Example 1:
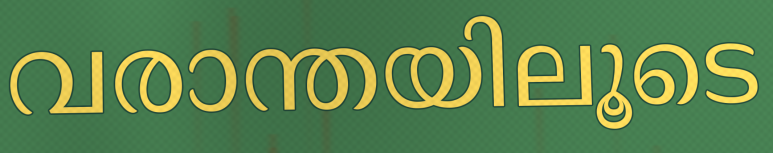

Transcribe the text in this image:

വരാന്തയിലൂടെ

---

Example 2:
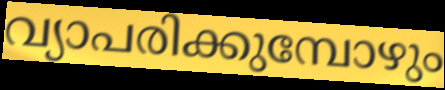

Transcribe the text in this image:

വ്യാപരിക്കുമ്പോഴും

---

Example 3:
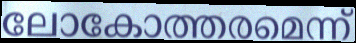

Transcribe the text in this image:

ലോകോത്തരമെന്ന്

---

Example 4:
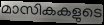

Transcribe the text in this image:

മാസികകളുടെ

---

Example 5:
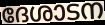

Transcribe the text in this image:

ദേശാടന